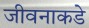
जीवनाकडे